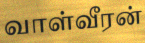
வாள்வீரன்